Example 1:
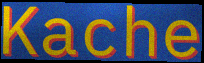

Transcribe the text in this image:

Kache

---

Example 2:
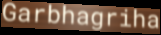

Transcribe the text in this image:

Garbhagriha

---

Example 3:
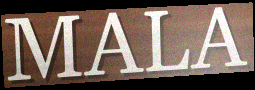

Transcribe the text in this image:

MALA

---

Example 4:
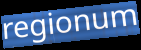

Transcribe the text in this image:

regionum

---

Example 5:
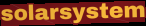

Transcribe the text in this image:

solarsystem